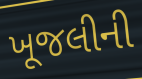
ખૂજલીની